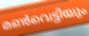
മൺവെട്ടിയും